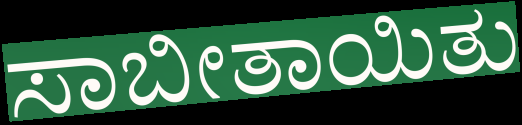
ಸಾಬೀತಾಯಿತು